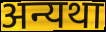
अन्यथा